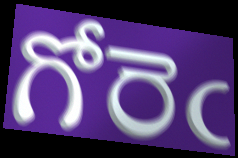
గోరెఁ